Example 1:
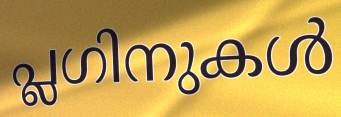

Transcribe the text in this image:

പ്ലഗിനുകൾ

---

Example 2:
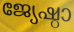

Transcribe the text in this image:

ജ്യേഷ്ഠാ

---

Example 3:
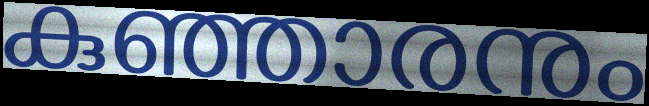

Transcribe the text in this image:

കുഞ്ഞാരനും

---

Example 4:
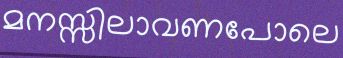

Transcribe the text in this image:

മനസ്സിലാവണപോലെ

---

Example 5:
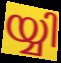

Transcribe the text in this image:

യ്യി